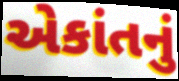
એકાંતનું